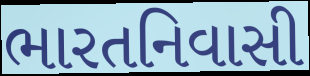
ભારતનિવાસી